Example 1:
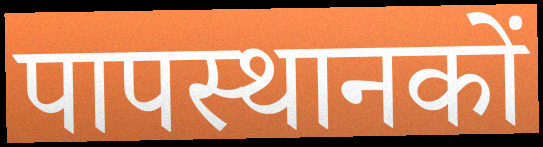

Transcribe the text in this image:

पापस्थानकों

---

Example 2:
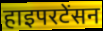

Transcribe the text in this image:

हाइपरटेंसन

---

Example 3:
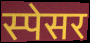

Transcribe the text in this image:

स्पेसर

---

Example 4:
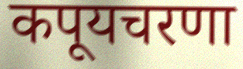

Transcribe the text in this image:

कपूयचरणा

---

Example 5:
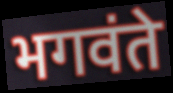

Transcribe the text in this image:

भगवंते